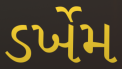
ડર્ખેમ